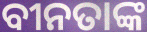
ବୀନତାଙ୍କ